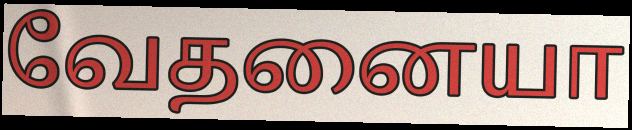
வேதனையா